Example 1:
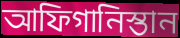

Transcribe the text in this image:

আফিগানিস্তান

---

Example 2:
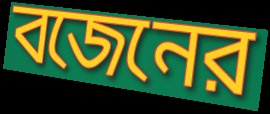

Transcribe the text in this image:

বজেনের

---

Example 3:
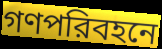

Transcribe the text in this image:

গণপরিবহনে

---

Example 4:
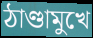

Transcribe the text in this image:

ঠাণ্ডামুখে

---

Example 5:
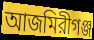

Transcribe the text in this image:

আজমিরীগঞ্জ